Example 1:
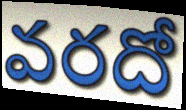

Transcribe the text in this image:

వరదో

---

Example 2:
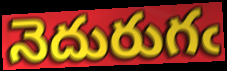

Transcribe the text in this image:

నెదురుగఁ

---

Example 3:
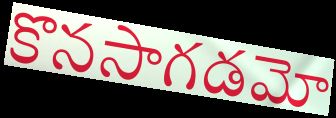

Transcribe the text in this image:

కొనసాగడమో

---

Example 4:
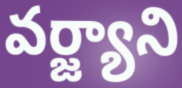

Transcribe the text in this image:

వర్జ్యాని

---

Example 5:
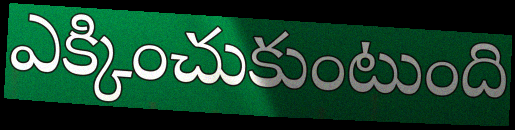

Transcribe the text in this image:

ఎక్కించుకుంటుంది